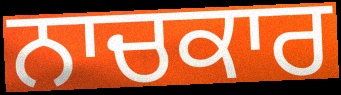
ਨਾਚਕਾਰ